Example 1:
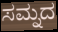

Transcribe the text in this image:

ಸಮ್ನದ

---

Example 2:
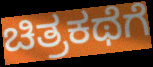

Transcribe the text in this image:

ಚಿತ್ರಕಥೆಗೆ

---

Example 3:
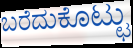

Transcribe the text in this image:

ಬರೆದುಕೊಟ್ಟು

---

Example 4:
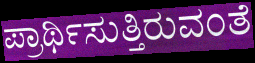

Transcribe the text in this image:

ಪ್ರಾರ್ಥಿಸುತ್ತಿರುವಂತೆ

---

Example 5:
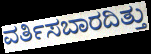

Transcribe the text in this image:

ವರ್ತಿಸಬಾರದಿತ್ತು